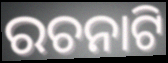
ରଚନାଟି